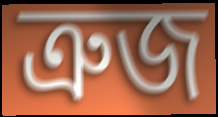
ত্রুজ